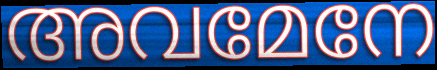
അവമേനേ